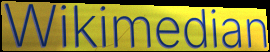
Wikimedian